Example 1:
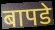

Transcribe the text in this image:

बापडे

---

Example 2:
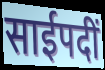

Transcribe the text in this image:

साईपदीं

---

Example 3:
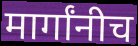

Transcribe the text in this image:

मार्गांनीच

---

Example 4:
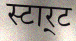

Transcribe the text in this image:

स्टार्ट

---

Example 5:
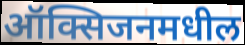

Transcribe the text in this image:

ऑक्सिजनमधील